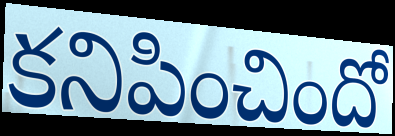
కనిపించిందో